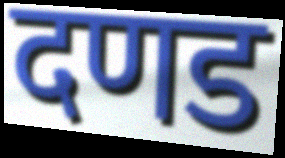
दणड